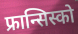
फ्रान्सिस्को